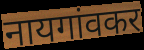
नायगांवकर